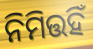
ନିମିତ୍ତହିଁ